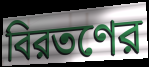
বিরতণের